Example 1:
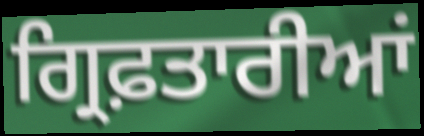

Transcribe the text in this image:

ਗ੍ਰਿਫ਼ਤਾਰੀਆਂ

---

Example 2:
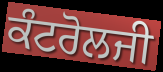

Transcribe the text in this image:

ਕੰਟਰੋਲਜੀ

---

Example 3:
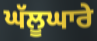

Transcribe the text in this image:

ਘੱਲੂਘਾਰੇ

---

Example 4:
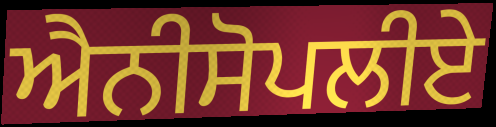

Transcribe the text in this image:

ਐਨੀਸੋਪਲੀਏ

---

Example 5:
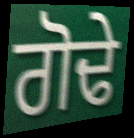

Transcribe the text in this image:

ਗੋਢੇ